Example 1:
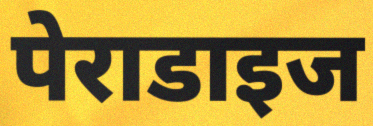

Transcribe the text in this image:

पेराडाइज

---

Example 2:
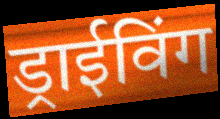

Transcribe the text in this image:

ड्राईविंग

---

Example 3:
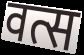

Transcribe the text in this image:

वत्स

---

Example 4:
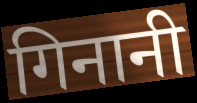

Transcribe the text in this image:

गिनानी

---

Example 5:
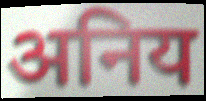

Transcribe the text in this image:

अनिय